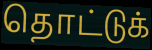
தொட்டுக்